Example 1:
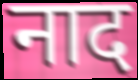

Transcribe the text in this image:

नाद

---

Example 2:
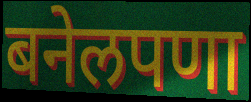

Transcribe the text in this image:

बनेलपणा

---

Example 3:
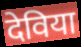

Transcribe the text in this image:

देविया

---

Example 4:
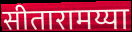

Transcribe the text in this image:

सीतारामय्या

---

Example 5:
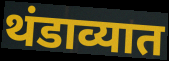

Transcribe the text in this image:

थंडाव्यात